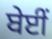
ਬੇਈਂ